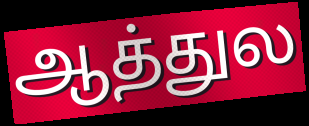
ஆத்துல